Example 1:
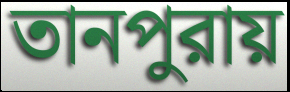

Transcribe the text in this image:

তানপুরায়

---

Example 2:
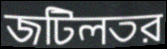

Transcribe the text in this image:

জটিলতর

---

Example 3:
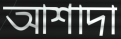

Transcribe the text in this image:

আশাদা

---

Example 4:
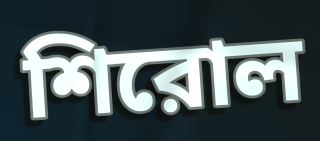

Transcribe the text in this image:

শিরোল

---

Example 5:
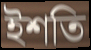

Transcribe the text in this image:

ইশতি